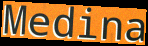
Medina